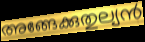
അങ്ങേക്കുതുല്യൻ